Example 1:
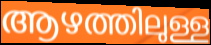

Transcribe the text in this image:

ആഴത്തിലുള്ള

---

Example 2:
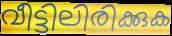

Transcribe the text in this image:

വീട്ടിലിരിക്കുക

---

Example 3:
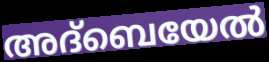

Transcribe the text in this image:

അദ്ബെയേൽ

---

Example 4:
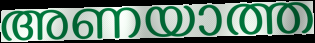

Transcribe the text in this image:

അണയാത്ത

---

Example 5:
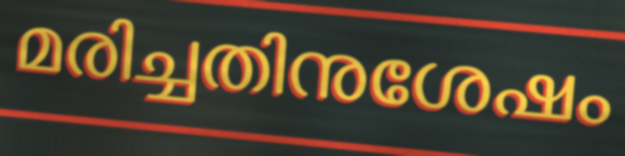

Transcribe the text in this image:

മരിച്ചതിനുശേഷം